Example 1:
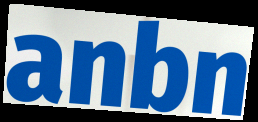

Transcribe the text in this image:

anbn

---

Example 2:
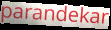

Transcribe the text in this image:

parandekar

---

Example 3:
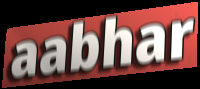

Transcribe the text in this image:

aabhar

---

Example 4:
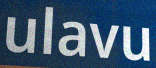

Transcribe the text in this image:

ulavu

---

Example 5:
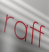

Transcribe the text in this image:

raff